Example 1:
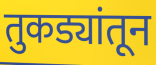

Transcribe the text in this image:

तुकड्यांतून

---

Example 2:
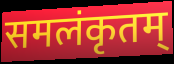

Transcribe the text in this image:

समलंकृतम्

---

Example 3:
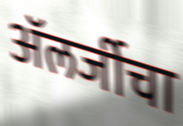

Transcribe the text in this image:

ॲलर्जीचा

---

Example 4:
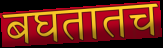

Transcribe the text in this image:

बघतातच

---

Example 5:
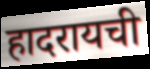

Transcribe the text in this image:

हादरायची